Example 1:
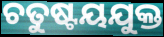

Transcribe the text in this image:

ଚତୁଷ୍ଟୟଯୁକ୍ତ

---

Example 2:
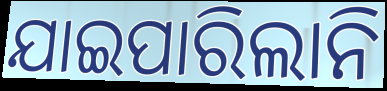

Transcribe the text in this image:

ଯାଇପାରିଲାନି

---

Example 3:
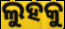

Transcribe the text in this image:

ଲୁହକୁ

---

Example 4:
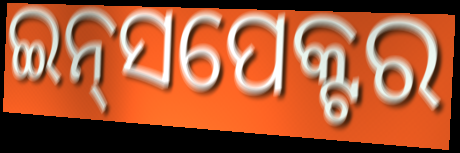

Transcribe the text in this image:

ଇନ୍‌ସପେକ୍ଟର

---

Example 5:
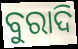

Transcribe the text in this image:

ବୁରାଦି